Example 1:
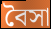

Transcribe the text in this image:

বৈসা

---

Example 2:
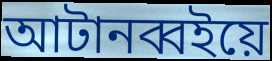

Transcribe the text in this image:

আটানব্বইয়ে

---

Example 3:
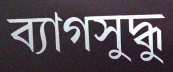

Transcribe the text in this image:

ব্যাগসুদ্ধু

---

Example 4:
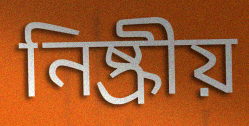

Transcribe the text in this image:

নিষ্ক্রীয়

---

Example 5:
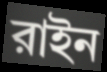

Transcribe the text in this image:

রাইন